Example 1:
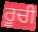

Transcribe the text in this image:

ਰੂਚੀ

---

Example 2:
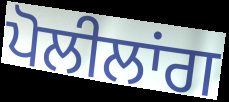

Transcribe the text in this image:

ਪੋਲੀਲਾਂਗ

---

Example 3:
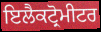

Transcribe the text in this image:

ਇਲੈਕਟ੍ਰੋਮੀਟਰ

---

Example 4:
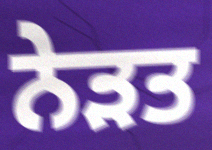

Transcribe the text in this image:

ਨੇੜਤ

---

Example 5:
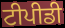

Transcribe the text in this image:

ਟੀਪੀਡੀ